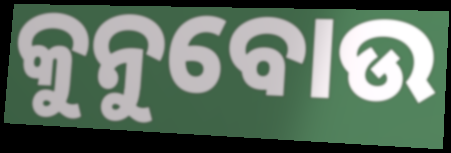
କୁନୁବୋଉ